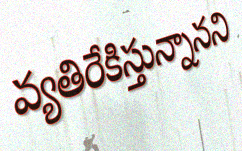
వ్యతిరేకిస్తున్నానని